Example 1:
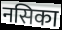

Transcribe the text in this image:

नसिका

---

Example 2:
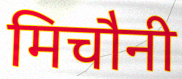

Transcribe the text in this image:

मिचौनी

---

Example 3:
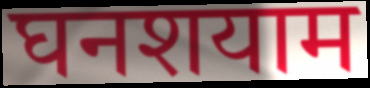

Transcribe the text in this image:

घनशयाम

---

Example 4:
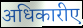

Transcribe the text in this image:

अधिकारीए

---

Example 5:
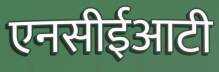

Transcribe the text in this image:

एनसीईआटी